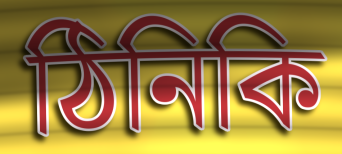
ঠিনিকি